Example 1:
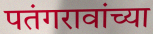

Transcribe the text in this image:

पतंगरावांच्या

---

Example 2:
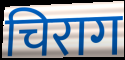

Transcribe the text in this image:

चिराग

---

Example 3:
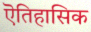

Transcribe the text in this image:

ऎतिहासिक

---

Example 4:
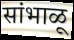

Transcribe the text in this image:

सांभाळू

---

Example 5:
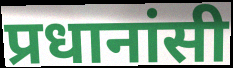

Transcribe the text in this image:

प्रधानांसी